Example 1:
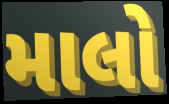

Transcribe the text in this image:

માલો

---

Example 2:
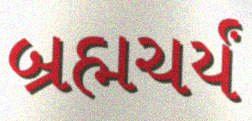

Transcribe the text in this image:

બ્રહ્મચર્યં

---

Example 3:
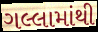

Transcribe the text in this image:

ગલ્લામાંથી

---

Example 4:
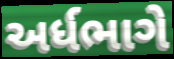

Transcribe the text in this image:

અર્ધભાગે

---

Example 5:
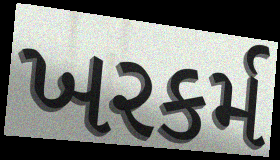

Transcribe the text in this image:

ખરકર્મ